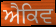
ਐਕਿਵ